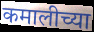
कमालीच्या